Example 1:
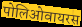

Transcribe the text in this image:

पोलिओवायरस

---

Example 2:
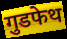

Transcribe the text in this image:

गुडफेथ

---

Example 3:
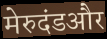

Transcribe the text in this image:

मेरुदंडऔर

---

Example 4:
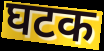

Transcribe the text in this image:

घटक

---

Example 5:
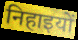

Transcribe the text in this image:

निहाइयों